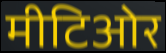
मीटिओर